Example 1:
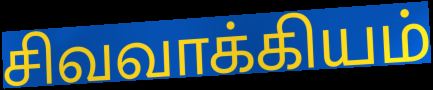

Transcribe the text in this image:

சிவவாக்கியம்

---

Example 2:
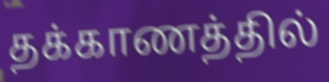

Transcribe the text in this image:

தக்காணத்தில்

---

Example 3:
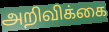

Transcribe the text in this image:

அறிவிக்கை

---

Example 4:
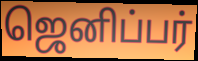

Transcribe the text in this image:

ஜெனிப்பர்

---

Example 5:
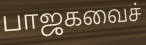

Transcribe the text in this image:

பாஜகவைச்